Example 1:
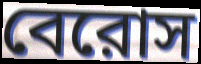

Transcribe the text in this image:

বেরোস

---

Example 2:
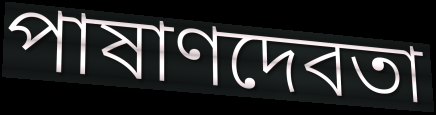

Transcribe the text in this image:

পাষাণদেবতা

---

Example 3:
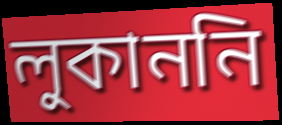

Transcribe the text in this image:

লুকাননি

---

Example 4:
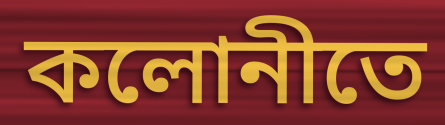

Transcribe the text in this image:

কলোনীতে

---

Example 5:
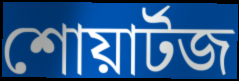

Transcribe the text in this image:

শোয়ার্টজ